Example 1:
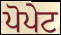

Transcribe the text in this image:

ਪੋਪੇਟ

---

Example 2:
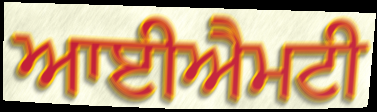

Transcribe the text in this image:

ਆਈਐਮਟੀ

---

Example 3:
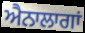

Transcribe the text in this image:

ਐਨਾਲਾਗਾਂ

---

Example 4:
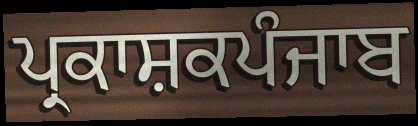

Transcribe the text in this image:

ਪ੍ਰਕਾਸ਼ਕਪੰਜਾਬ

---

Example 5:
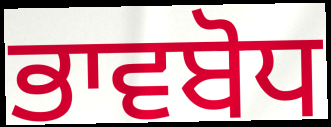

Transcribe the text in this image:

ਭਾਵਬੋਧ